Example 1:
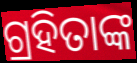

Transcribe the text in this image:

ଗ୍ରହିତାଙ୍କ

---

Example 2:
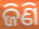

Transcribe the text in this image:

ଜିଣି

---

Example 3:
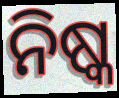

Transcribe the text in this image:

ନିଷ୍କ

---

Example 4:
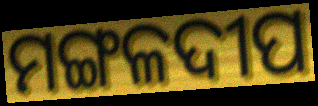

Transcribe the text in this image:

ମଙ୍ଗଳଦୀପ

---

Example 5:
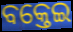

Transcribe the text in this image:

ବକ୍ତେଇ